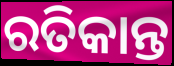
ରତିକାନ୍ତ